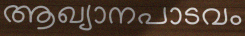
ആഖ്യാനപാടവം